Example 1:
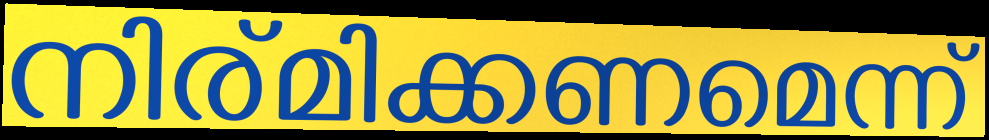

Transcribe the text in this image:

നിര്മിക്കണമെന്ന്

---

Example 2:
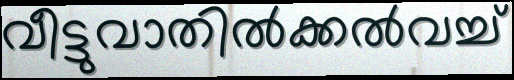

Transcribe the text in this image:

വീട്ടുവാതിൽക്കൽവച്ച്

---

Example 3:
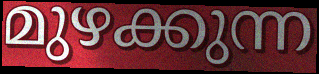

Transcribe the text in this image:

മുഴക്കുന്ന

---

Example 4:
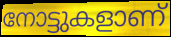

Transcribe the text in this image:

നോട്ടുകളാണ്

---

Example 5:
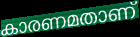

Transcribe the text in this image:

കാരണമതാണ്